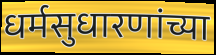
धर्मसुधारणांच्या